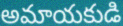
అమాయకుడి